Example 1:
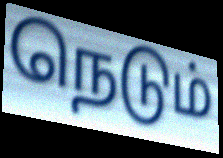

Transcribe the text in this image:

நெடும்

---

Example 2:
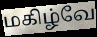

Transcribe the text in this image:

மகிழ்வே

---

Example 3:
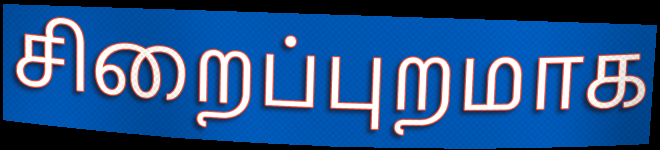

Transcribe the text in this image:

சிறைப்புறமாக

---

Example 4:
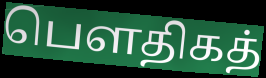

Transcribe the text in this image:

பௌதிகத்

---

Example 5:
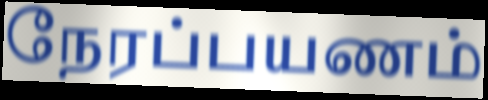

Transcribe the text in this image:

நேரப்பயணம்